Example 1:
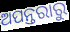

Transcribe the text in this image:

ଅପନ୍ତରାରୁ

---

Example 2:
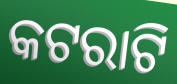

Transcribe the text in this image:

କଟରାଟି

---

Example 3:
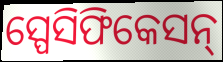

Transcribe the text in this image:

ସ୍ପେସିଫିକେସନ୍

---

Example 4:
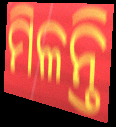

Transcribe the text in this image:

ମିଳନ୍ତି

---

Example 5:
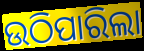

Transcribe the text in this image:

ଉଠିପାରିଲା